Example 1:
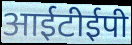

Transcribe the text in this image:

आईटीईपी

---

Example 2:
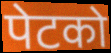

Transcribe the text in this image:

पेटको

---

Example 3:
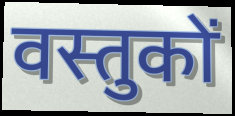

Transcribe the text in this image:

वस्तुकों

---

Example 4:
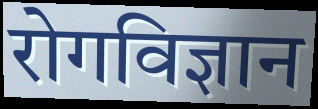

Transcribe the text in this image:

रोगविज्ञान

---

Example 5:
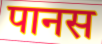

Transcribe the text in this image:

पानस